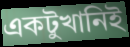
একটুখানিই